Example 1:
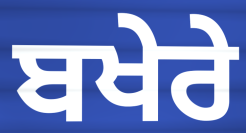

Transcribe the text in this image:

ਬਖੇਰੇ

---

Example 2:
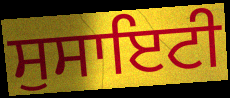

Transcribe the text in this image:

ਸੁਸਾਇਟੀ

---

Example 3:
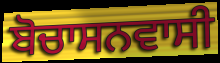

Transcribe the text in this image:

ਬੋਚਾਸਨਵਾਸੀ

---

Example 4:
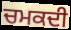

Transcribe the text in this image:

ਚਮਕਦੀ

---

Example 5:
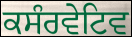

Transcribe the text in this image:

ਕਸੰਰਵੇਟਿਵ